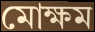
মোক্ষম